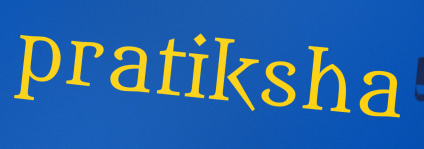
pratiksha